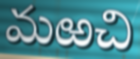
మఱచి